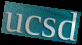
ucsd